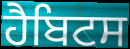
ਹੈਬਿਟਸ